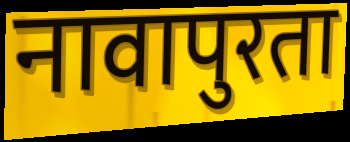
नावापुरता